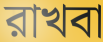
রাখবা